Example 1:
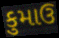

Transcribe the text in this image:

કુમાઉ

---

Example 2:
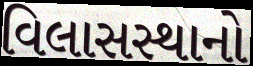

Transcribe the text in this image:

વિલાસસ્થાનો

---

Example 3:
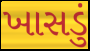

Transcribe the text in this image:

ખાસડું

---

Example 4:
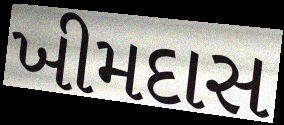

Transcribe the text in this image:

ખીમદાસ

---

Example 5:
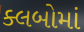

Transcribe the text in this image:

ક્લબોમાં